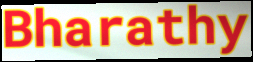
Bharathy